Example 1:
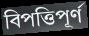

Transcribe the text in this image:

বিপত্তিপূর্ণ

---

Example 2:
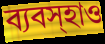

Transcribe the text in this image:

ব্যবস্হাও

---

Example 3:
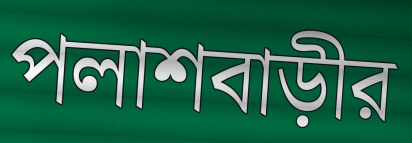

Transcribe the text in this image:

পলাশবাড়ীর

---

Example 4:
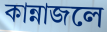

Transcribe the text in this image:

কান্নাজলে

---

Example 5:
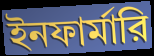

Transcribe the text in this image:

ইনফার্মারি